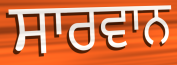
ਸਾਰਵਾਨ